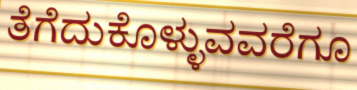
ತೆಗೆದುಕೊಳ್ಳುವವರೆಗೂ